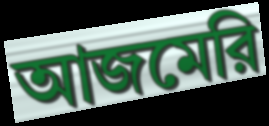
আজমেরি